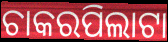
ଚାକରପିଲାଟା